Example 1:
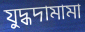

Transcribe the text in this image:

যুদ্ধদামামা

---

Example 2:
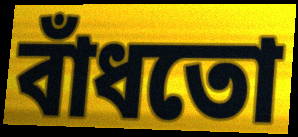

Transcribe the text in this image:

বাঁধতো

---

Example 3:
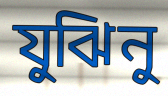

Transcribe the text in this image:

যুঝিনু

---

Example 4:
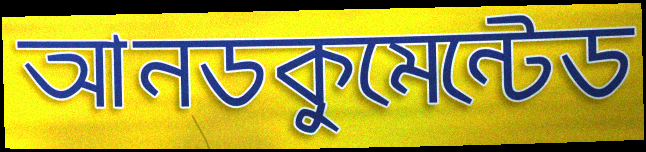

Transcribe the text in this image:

আনডকুমেন্টেড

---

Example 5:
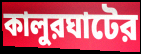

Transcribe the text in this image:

কালুরঘাটের